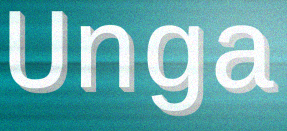
Unga